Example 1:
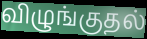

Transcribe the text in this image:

விழுங்குதல்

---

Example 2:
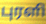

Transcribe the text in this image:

புரளி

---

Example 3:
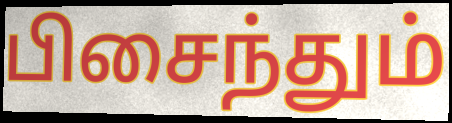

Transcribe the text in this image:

பிசைந்தும்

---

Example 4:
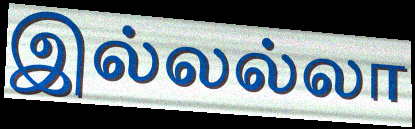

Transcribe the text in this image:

இல்லல்லா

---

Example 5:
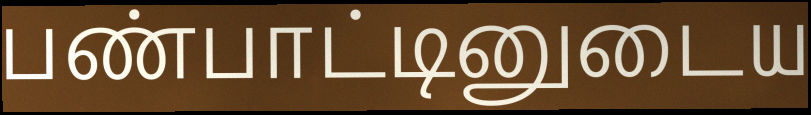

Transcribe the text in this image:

பண்பாட்டினுடைய